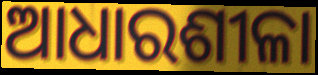
ଆଧାରଶୀଳା